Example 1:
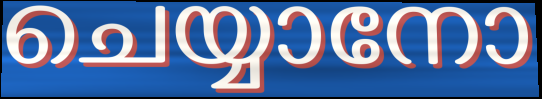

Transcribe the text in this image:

ചെയ്യാനോ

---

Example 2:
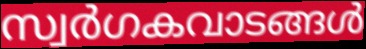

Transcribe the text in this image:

സ്വർഗകവാടങ്ങൾ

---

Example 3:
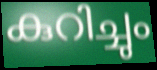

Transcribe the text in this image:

കുറിച്ചും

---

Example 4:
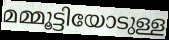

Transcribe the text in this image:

മമ്മൂട്ടിയോടുള്ള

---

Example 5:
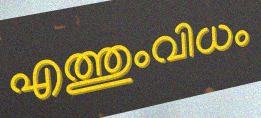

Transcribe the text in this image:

എത്തുംവിധം